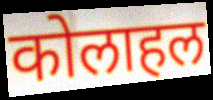
कोलाहल